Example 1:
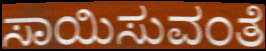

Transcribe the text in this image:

ಸಾಯಿಸುವಂತೆ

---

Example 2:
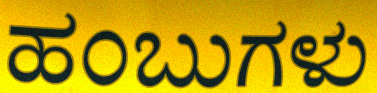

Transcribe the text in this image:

ಹಂಬುಗಳು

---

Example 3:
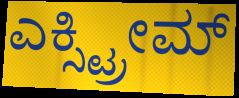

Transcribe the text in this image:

ಎಕ್ಸ್ಟ್ರೀಮ್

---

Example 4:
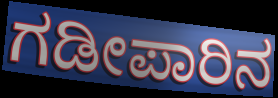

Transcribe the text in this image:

ಗಡೀಪಾರಿನ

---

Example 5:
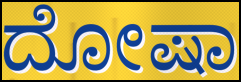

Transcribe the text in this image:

ದೋಷಾ